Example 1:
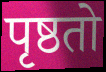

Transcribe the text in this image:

पृष्ठतो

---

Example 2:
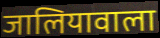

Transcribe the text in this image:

जालियावाला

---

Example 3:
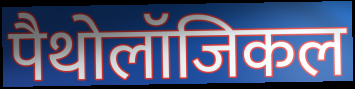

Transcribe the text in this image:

पैथोलॉजिकल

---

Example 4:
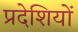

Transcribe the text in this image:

प्रदेशियों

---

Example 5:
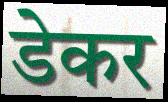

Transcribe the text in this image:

डेकर